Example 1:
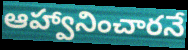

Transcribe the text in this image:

ఆహ్వానించారనే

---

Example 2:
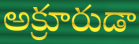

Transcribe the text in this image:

అక్రూరుడా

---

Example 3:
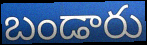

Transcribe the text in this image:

బండారు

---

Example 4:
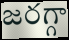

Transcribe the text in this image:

జరగ్గా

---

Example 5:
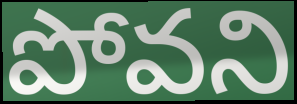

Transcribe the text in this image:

పోవని